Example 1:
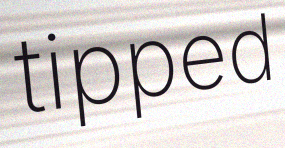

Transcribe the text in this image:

tipped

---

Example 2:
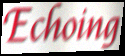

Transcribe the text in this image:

Echoing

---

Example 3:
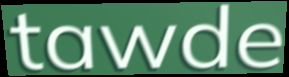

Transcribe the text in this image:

tawde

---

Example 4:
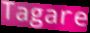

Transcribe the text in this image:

Tagare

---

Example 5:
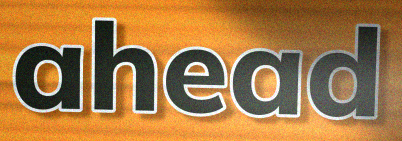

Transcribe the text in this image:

ahead